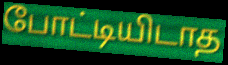
போட்டியிடாத